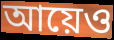
আয়েও